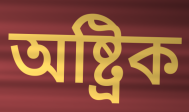
অষ্ট্ৰিক